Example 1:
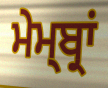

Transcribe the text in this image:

ਮੇਮ੍ਬ੍ਰਾਂ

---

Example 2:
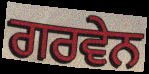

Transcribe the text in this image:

ਗਰਵੇਨ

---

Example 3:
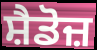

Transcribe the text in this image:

ਸ਼ੈਡੋਜ਼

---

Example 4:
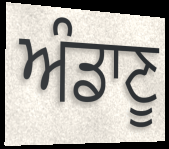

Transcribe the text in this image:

ਅੰਡਾਣੂ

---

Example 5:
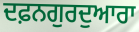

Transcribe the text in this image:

ਦਫ਼ਨਗੁਰਦੁਆਰਾ